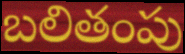
బలితంపు